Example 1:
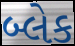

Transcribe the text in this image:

બ્લેક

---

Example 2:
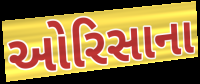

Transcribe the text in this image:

ઓરિસાના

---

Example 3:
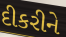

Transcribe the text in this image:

દીકરીને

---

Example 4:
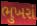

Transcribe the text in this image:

ભુખરાં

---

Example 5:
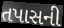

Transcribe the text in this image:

તપાસની